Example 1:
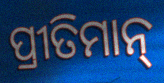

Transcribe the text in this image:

ପ୍ରୀତିମାନ୍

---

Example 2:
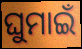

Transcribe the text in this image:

ଘୁମାଇଁ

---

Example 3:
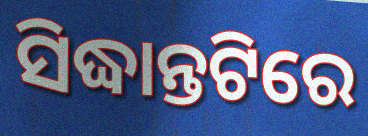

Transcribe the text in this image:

ସିଦ୍ଧାନ୍ତଟିରେ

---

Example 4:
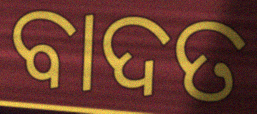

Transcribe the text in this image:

ବାଦତ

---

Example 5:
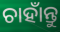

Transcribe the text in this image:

ଚାହାଁନ୍ତୁ